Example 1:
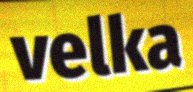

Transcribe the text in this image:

velka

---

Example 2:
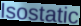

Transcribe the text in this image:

Isostatic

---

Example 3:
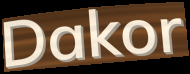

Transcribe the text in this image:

Dakor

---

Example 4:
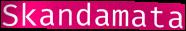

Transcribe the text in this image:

Skandamata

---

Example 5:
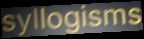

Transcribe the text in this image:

syllogisms